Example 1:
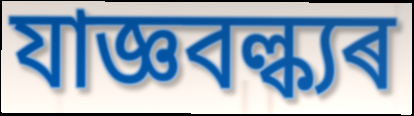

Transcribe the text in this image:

যাজ্ঞবল্ক্যৰ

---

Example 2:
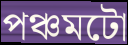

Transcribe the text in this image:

পঞ্চমটো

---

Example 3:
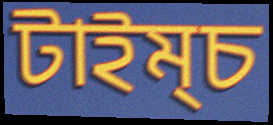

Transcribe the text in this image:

টাইম্‌চ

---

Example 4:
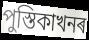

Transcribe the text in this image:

পুস্তিকাখনৰ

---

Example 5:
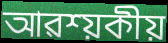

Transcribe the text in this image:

আৱশ্য়কীয়